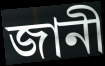
জানী